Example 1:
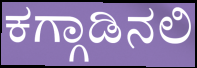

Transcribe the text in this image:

ಕಗ್ಗಾಡಿನಲಿ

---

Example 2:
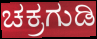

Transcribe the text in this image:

ಚಕ್ರಗುಡಿ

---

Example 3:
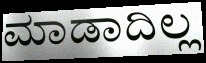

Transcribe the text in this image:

ಮಾಡಾದಿಲ್ಲ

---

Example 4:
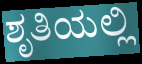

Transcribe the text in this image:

ಶೃತಿಯಲ್ಲಿ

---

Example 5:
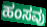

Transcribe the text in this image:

ಹಂಸವು